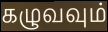
கழுவவும்